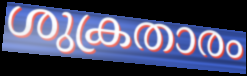
ശുക്രതാരം